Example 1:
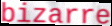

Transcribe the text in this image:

bizarre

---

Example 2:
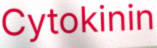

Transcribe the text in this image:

Cytokinin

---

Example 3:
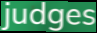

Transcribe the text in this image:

judges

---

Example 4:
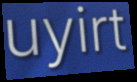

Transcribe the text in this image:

uyirt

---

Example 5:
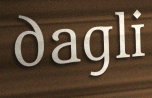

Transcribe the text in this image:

dagli